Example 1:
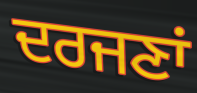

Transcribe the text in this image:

ਦਰਜਣਾਂ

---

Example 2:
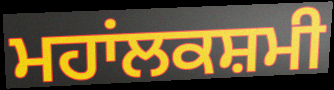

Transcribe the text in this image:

ਮਹਾਂਲਕਸ਼ਮੀ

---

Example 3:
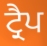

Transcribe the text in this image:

ਟ੍ਰੈਪ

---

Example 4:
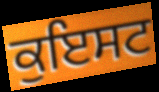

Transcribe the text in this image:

ਕੁਇਸਟ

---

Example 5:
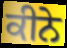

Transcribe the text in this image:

ਕੀਨੇ